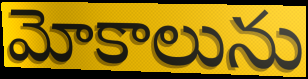
మోకాలును